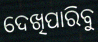
ଦେଖିପାରିବୁ